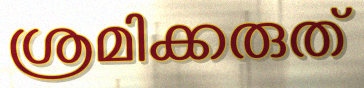
ശ്രമിക്കരുത്